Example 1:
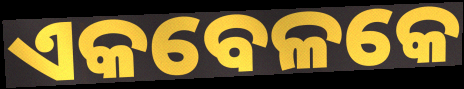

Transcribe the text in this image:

ଏକବେଳକେ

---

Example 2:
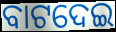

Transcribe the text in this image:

ବାଟଦେଇ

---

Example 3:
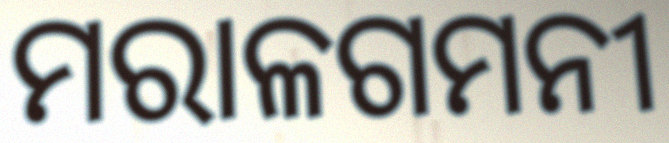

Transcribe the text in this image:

ମରାଳଗମନୀ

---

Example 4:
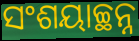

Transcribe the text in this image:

ସଂଶୟାଚ୍ଛନ୍ନ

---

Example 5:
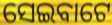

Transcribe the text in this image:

ସେଇବାଟେ